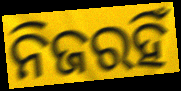
ନିଜରହିଁ